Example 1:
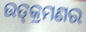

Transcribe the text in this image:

ଉତ୍‍କ୍ରମଣର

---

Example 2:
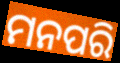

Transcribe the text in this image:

ମନପରି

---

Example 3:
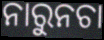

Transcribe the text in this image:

ନାରୁନଚା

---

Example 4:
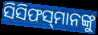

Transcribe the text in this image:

ସିସିଫସ୍‌ମାନଙ୍କୁ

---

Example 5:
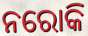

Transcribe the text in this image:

ନରୋକି